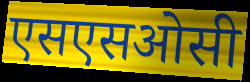
एसएसओसी